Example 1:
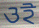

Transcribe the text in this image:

ওই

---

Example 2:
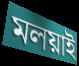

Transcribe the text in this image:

মলয়াই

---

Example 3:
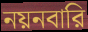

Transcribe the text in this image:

নয়নবারি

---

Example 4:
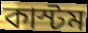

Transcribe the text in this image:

কাস্টম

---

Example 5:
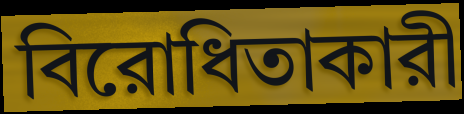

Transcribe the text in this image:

বিরোধিতাকারী